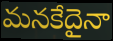
మనకేదైనా